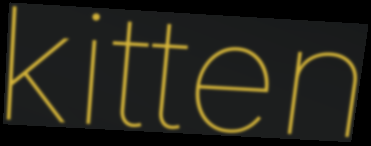
kitten